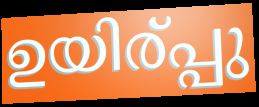
ഉയിര്പ്പു